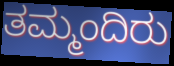
ತಮ್ಮಂದಿರು